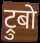
ट्रुबो